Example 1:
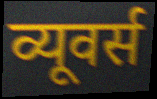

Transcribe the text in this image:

व्यूवर्स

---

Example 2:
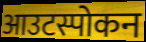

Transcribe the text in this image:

आउटस्पोकन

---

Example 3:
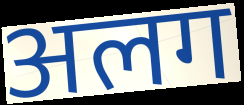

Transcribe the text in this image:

अलग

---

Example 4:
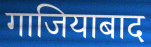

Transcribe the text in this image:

गाजियाबाद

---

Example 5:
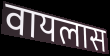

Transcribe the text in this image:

वायलास